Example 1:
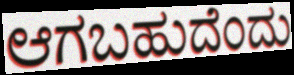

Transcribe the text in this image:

ಆಗಬಹುದೆಂದು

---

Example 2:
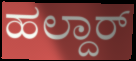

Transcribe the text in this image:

ಹಲ್ದಾರ್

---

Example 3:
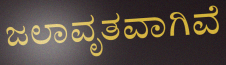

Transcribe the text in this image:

ಜಲಾವೃತವಾಗಿವೆ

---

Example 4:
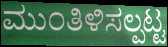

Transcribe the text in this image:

ಮುಂತಿಳಿಸಲ್ಪಟ್ಟ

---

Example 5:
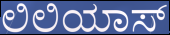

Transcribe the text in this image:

ಲಿಲಿಯಾಸ್